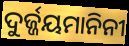
ଦୁର୍ଜ୍ଜୟମାନିନୀ